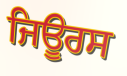
ਜਿਊਰਸ